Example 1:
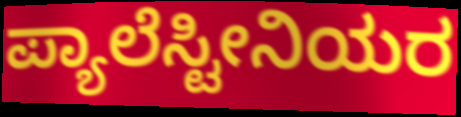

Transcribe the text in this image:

ಪ್ಯಾಲೆಸ್ಟೀನಿಯರ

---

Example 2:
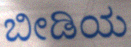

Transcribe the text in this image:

ಬೀಡಿಯ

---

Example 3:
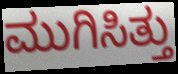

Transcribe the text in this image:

ಮುಗಿಸಿತ್ತು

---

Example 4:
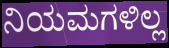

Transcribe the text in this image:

ನಿಯಮಗಳಿಲ್ಲ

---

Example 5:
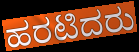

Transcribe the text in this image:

ಹರಟಿದರು